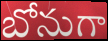
బోనుగా